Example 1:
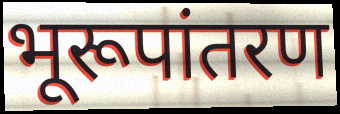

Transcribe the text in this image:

भूरूपांतरण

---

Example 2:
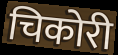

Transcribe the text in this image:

चिकोरी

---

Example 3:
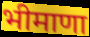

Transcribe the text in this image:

भीमाणा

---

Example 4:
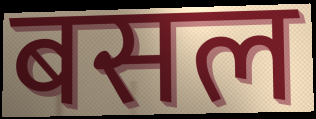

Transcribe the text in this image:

बसल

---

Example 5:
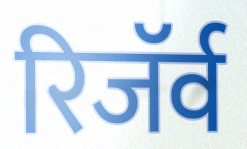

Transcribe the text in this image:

रिजॅर्व